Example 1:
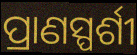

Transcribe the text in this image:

ପ୍ରାଣସ୍ପର୍ଶୀ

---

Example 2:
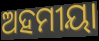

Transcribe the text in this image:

ଅହମୀୟା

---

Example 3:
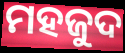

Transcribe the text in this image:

ମହଜୁଦ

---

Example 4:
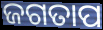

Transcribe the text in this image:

ଜଗତାପ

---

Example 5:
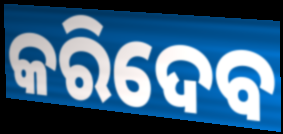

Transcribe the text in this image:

କରିଦେବ